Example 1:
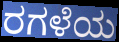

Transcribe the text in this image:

ರಗಳೆಯ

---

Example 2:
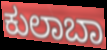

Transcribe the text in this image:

ಕುಲಾಬಾ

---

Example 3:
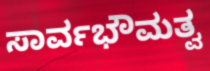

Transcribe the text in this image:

ಸಾರ್ವಭೌಮತ್ವ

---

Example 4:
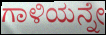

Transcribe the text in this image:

ಗಾಳಿಯನ್ನೇ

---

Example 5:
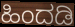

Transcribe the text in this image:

ಹಿಂದಡಿ